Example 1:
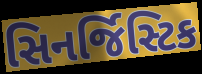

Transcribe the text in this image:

સિનર્જિસ્ટિક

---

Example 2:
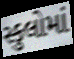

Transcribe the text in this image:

સ્કુલોમાં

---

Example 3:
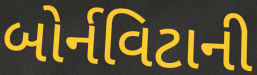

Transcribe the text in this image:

બોર્નવિટાની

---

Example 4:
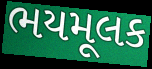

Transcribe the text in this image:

ભયમૂલક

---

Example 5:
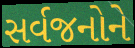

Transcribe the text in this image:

સર્વજનોને